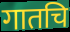
गातचि